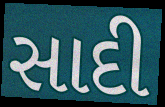
સાદી